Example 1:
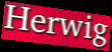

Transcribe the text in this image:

Herwig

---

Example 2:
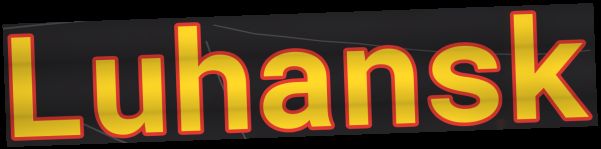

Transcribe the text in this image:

Luhansk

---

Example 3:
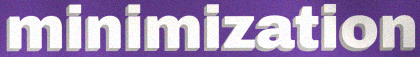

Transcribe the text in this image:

minimization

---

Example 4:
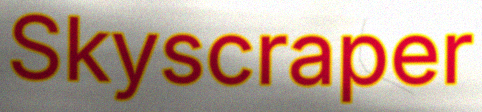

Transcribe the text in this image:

Skyscraper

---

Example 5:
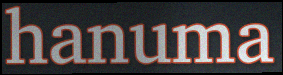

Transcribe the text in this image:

hanuma